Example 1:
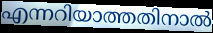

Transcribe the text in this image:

എന്നറിയാത്തതിനാൽ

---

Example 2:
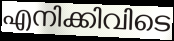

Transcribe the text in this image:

എനിക്കിവിടെ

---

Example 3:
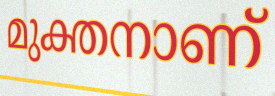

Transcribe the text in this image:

മുക്തനാണ്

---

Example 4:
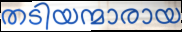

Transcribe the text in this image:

തടിയന്മാരായ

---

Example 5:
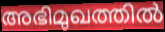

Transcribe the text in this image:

അഭിമുഖത്തിൽ